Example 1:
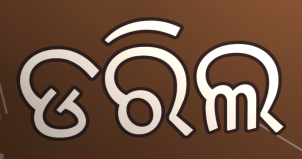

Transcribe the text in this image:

ଡରିଲ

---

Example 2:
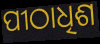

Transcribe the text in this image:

ପୀଠାଧିଶ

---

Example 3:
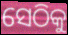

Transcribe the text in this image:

ସେଠିକୁ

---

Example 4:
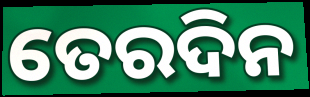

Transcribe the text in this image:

ତେରଦିନ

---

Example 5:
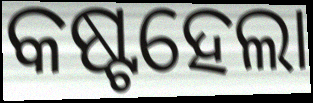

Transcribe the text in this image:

କଷ୍ଟହେଲା